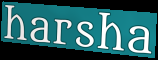
harsha